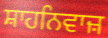
ਸ਼ਾਹਨਿਵਾਜ਼